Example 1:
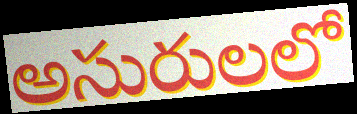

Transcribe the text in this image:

అసురులలో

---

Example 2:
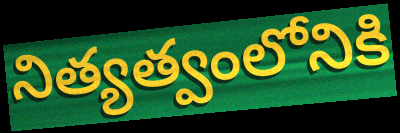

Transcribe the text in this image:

నిత్యత్వంలోనికి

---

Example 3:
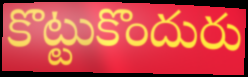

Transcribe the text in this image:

కొట్టుకొందురు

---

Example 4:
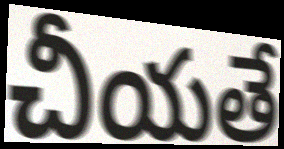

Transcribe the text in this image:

చీయతే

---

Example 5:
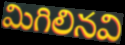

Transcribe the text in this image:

మిగిలినవి